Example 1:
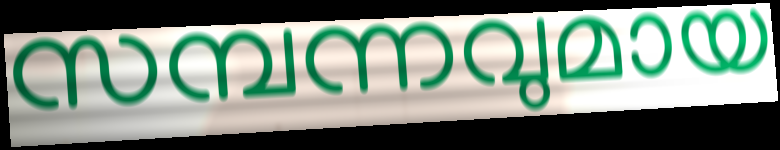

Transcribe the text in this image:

സമ്പന്നവുമായ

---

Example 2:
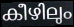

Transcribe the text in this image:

കീഴിലും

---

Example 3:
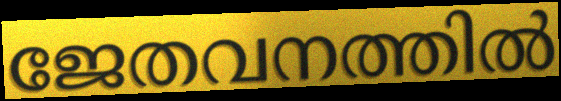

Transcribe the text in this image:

ജേതവനത്തിൽ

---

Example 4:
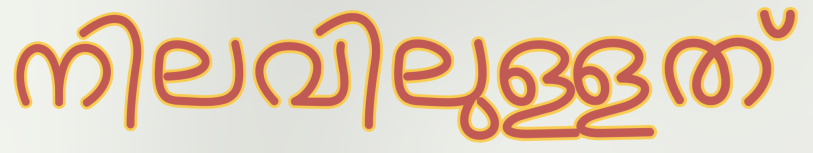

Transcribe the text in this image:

നിലവിലുള്ളത്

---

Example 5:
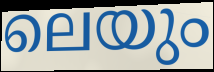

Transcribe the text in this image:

ലെയും